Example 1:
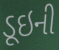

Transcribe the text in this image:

ડૂઇની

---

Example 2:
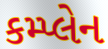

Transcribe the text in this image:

કમ્પ્લેન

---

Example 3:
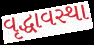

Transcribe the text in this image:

વૃદ્ધાવસ્થા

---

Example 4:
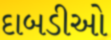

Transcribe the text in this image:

દાબડીઓ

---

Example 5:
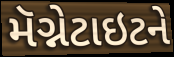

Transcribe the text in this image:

મૅગ્નેટાઇટને